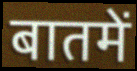
बातमें